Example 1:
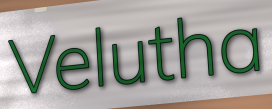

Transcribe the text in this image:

Velutha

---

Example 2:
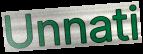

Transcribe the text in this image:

Unnati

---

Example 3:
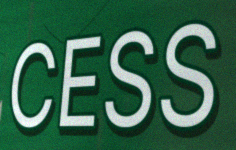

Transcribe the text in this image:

CESS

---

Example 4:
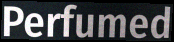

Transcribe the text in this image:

Perfumed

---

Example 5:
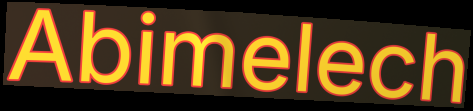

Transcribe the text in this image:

Abimelech